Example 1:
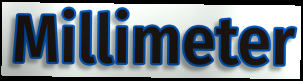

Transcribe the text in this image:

Millimeter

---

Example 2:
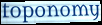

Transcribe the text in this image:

toponomy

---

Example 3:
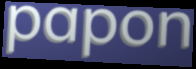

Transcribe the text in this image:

papon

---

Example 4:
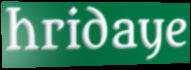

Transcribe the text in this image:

hridaye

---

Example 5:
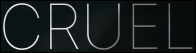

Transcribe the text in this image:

CRUEL